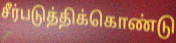
சீர்படுத்திக்கொண்டு